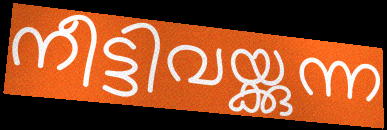
നീട്ടിവയ്ക്കുന്ന